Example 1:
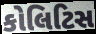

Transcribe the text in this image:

કોલિટિસ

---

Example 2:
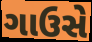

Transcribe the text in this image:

ગાઉસે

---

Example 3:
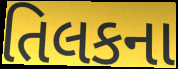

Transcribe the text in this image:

તિલકના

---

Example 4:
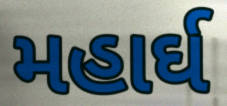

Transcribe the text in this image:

મહાર્ઘ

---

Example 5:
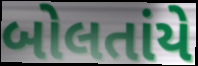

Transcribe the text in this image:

બોલતાંયે